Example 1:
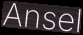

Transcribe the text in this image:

Ansel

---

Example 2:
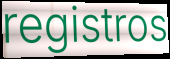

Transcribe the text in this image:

registros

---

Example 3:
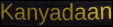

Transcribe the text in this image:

Kanyadaan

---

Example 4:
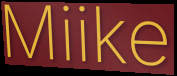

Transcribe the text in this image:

Miike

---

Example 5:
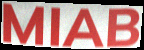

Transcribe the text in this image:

MIAB